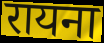
रायना